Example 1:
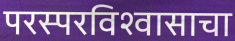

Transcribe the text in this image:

परस्परविश्वासाचा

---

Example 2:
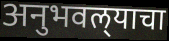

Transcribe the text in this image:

अनुभवल्याचा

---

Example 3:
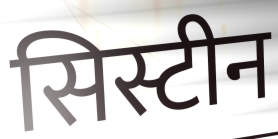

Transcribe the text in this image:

सिस्टीन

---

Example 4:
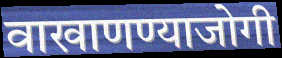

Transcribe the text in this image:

वाखाणण्याजोगी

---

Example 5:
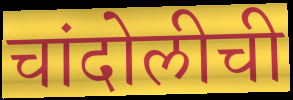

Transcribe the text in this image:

चांदोलीची